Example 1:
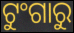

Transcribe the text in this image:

ଟୁଂଗାରୁ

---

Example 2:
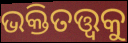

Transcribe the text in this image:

ଭକ୍ତିତତ୍ତ୍ୱକୁ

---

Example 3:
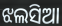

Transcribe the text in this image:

ଝଲସିଆ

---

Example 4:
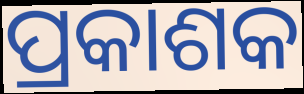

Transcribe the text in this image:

ପ୍ରକାଶକ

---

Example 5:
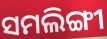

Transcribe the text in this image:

ସମଲିଙ୍ଗୀ